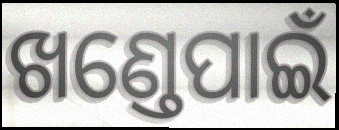
ଖଣ୍ଡେପାଇଁ